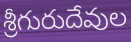
శ్రీగురుదేవుల